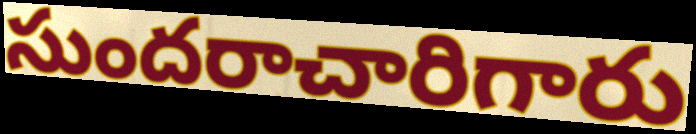
సుందరాచారిగారు